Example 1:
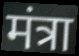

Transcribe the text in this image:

मंत्रा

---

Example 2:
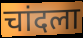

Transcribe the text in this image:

चांदला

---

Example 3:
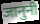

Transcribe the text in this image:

जानुनी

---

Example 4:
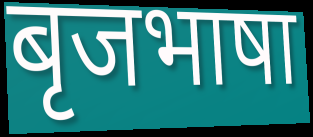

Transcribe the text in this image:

बृजभाषा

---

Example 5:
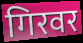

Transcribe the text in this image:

गिरवर